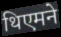
थिएमने